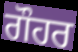
ਗੌਹਰ